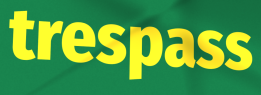
trespass